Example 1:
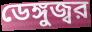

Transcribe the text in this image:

ডেঙ্গুজ্বর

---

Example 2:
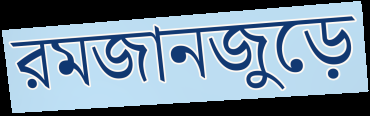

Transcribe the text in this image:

রমজানজুড়ে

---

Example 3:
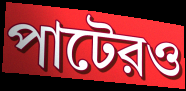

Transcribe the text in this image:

পাটেরও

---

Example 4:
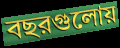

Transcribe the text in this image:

বছরগুলোয়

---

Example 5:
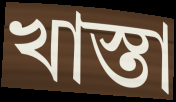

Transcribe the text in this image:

খাস্তা